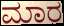
ಮಾರ